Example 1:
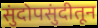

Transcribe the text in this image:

सुंदोपसुंदीतून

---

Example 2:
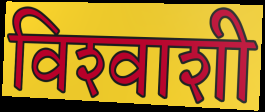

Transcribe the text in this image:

विश्वाशी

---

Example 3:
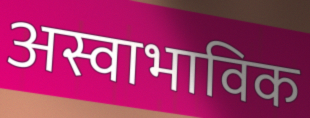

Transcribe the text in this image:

अस्वाभाविक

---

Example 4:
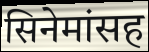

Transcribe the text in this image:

सिनेमांसह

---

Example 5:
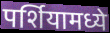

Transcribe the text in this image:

पर्शियामध्ये